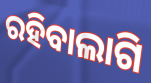
ରହିବାଲାଗି